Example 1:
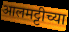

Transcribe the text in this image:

आलमट्टीच्या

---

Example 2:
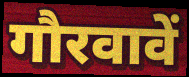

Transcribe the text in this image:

गौरवावें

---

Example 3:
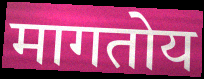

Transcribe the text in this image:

मागतोय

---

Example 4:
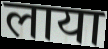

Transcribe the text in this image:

लाया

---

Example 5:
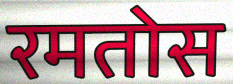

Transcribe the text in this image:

रमतोस